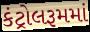
કંટ્રોલરૂમમાં